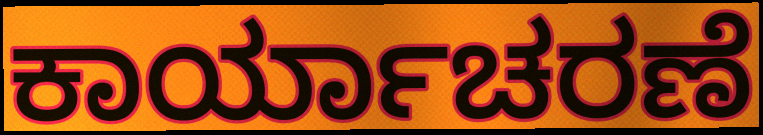
ಕಾರ್ಯಾಚರಣೆ